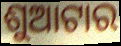
ଶୁଆଟାର